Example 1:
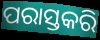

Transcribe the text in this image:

ପରାସ୍ତକରି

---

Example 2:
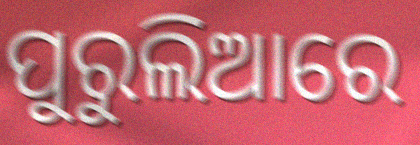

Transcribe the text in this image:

ପୁରୁଲିଆରେ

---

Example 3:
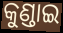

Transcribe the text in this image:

କୁଣ୍ଡାଇ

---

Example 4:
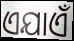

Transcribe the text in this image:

ଏଯାଏଁ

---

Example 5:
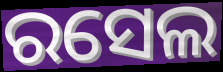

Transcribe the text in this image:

ରସେଲ